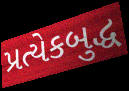
પ્રત્યેકબુદ્ધ